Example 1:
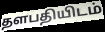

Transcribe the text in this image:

தளபதியிடம்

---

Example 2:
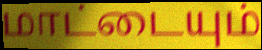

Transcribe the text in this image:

மாட்டையும்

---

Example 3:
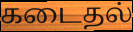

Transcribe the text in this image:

கடைதல்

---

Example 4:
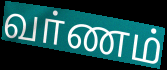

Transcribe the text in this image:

வர்ணம்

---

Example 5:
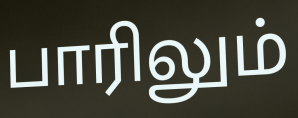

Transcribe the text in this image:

பாரிலும்